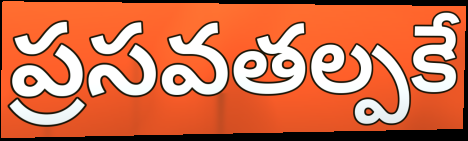
ప్రసవతల్పకే